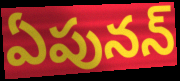
ఏపునన్